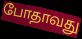
போதாவது